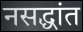
नसद्धांत